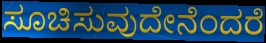
ಸೂಚಿಸುವುದೇನೆಂದರೆ